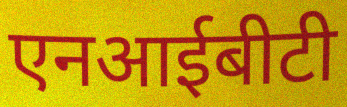
एनआईबीटी